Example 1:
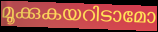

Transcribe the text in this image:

മൂക്കുകയറിടാമോ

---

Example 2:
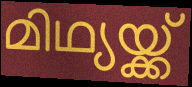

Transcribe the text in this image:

മിഥ്യയ്ക്ക്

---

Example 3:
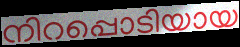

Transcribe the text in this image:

നിറപ്പൊടിയായ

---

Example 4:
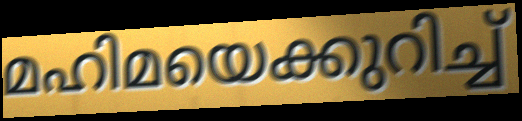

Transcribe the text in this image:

മഹിമയെക്കുറിച്ച്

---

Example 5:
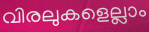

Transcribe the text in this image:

വിരലുകളെല്ലാം